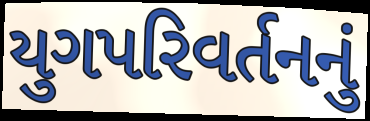
યુગપરિવર્તનનું